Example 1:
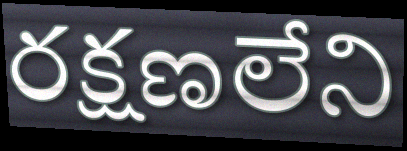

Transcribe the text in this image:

రక్షణలేని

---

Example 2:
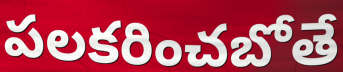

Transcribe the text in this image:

పలకరించబోతే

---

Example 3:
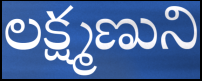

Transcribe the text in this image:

లక్ష్మణుని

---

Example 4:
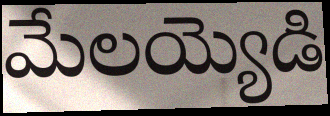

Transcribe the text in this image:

మేలయ్యెడి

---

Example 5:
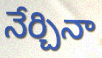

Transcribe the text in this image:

నేర్చినా